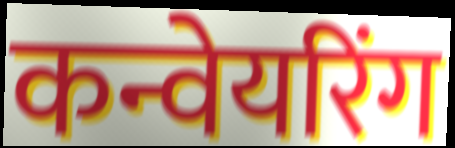
कन्वेयरिंग